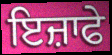
ਇਜ਼ਾਫੇ